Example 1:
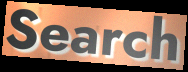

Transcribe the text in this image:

Search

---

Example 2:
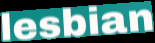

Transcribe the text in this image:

lesbian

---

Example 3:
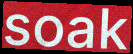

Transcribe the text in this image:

soak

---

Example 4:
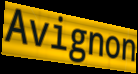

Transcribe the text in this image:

Avignon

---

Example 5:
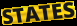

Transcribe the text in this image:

STATES